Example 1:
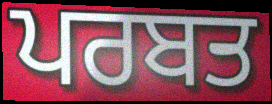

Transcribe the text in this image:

ਪਰਬਤ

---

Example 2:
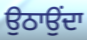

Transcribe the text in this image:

ਉਠਾਉਂਦਾ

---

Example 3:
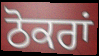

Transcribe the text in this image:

ਠੋਕਰਾਂ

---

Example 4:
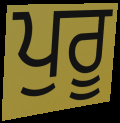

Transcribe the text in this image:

ਪੁਰੂ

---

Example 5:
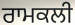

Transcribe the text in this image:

ਰਾਮਕਲੀ